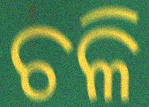
ଚଳି